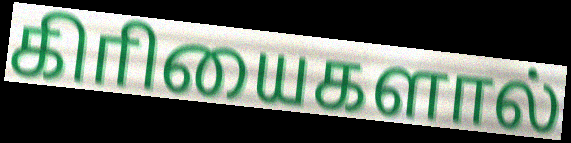
கிரியைகளால்